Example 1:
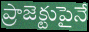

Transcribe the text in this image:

ప్రాజెక్టుపైనే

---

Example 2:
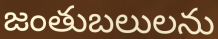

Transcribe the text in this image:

జంతుబలులను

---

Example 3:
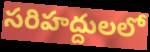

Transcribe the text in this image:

సరిహద్దులలో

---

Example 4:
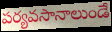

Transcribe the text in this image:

పర్యవసానాలుండే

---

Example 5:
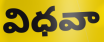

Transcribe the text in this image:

విధవా